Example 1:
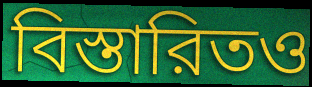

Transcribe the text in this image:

বিস্তারিতও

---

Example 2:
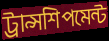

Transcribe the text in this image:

ট্রান্সশিপমেন্ট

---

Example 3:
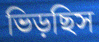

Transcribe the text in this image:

ভিড়ছিস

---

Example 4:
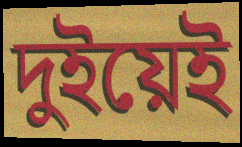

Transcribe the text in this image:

দুইয়েই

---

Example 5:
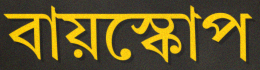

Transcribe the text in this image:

বায়স্কোপ